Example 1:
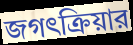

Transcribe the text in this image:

জগৎক্রিয়ার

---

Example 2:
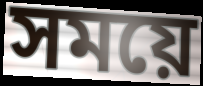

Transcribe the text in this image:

সময়ে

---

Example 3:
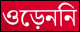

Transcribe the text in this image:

ওড়েননি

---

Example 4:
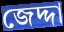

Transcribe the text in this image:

জেদ্দা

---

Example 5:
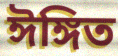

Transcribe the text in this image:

ঈঙ্গিত